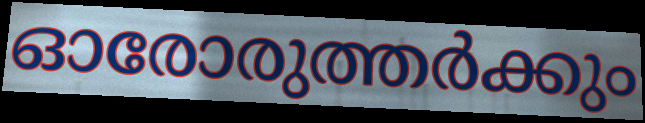
ഓരോരുത്തർക്കും